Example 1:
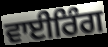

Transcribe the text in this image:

ਵਾਈਰਿੰਗ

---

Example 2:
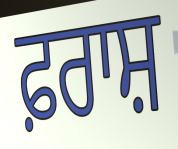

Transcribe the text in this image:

ਫ਼ਰਾਸ਼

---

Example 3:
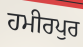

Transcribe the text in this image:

ਹਮੀਰਪੁਰ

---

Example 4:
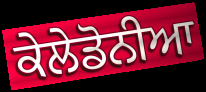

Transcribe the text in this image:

ਕੇਲੇਡੋਨੀਆ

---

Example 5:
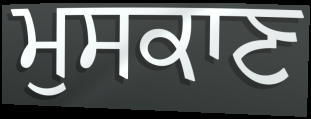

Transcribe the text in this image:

ਮੁਸਕਾਣ